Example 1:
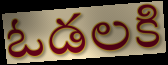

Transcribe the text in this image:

ఓడలకి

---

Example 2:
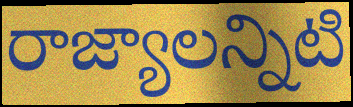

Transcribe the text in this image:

రాజ్యాలన్నిటి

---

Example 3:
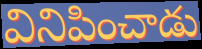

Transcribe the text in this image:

వినిపించాడు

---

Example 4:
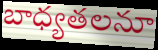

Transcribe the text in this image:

బాధ్యతలనూ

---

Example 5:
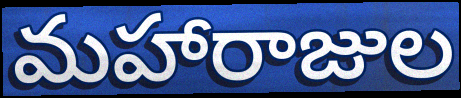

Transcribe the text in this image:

మహారాజుల